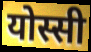
योस्सी